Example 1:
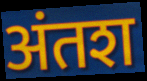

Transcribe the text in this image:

अंतश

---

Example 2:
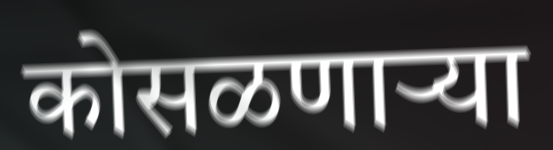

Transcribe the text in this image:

कोसळणार्‍या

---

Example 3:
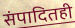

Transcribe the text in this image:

संपादितही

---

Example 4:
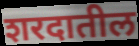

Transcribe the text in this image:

शरदातील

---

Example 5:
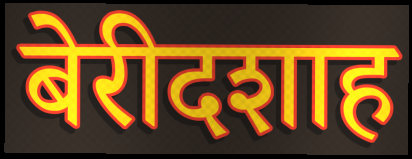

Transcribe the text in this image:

बेरीदशाह